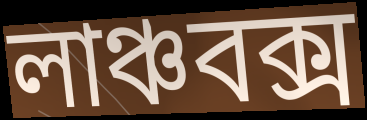
লাঞ্চবক্স